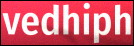
vedhiph